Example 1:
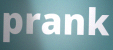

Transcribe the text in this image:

prank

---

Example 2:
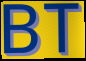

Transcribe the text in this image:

BT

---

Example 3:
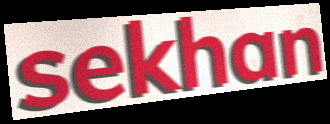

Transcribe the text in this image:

sekhan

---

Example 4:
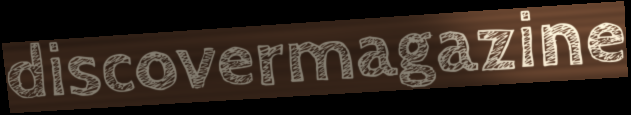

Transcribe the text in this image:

discovermagazine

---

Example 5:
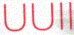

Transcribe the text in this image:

UUII